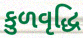
કુળવૃદ્ધિ